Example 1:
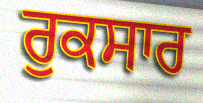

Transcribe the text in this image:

ਰੁਕਸਾਰ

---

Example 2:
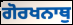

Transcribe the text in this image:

ਗੋਰਖਨਾਥੁ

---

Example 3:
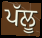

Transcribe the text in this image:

ਪੱਲੂ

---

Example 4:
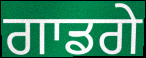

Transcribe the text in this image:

ਗਾਡਗੇ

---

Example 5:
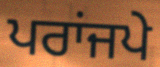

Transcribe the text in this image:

ਪਰਾਂਜਪੇ